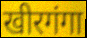
खीरगंगा